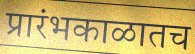
प्रारंभकाळातच